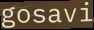
gosavi